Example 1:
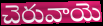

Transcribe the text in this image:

చెరువాయె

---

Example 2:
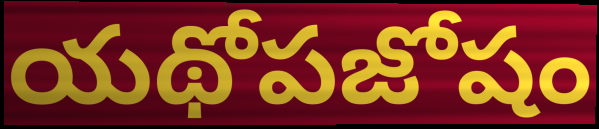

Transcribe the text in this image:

యథోపజోషం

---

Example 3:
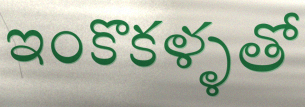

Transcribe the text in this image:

ఇంకొకళ్ళతో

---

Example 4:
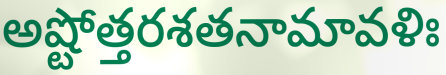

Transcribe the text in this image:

అష్టోత్తరశతనామావళిః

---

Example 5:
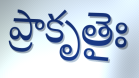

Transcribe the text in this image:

ప్రాకృతైః